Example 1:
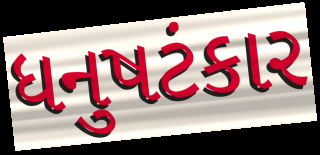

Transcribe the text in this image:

ધનુષટંકાર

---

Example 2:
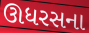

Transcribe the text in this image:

ઊધરસના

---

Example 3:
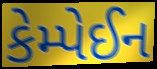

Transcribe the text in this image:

કેમ્પેઈન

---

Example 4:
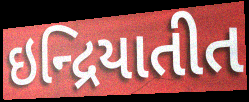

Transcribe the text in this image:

ઇન્દ્રિયાતીત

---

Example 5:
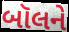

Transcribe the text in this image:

બૉલને